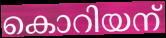
കൊറിയന്